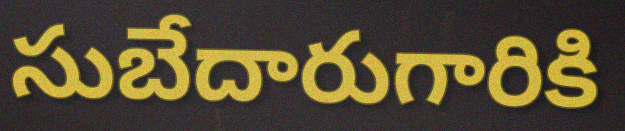
సుబేదారుగారికి